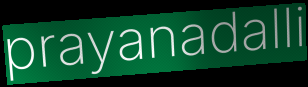
prayanadalli